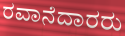
ರವಾನೆದಾರರು